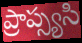
ప్రాప్స్యసి